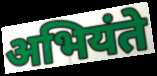
अभियंते